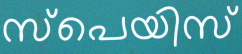
സ്പെയിസ്